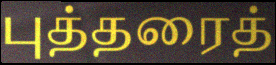
புத்தரைத்